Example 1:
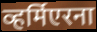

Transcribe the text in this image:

व्हर्मिएरना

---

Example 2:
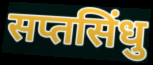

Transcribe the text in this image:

सप्तसिंधु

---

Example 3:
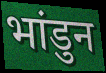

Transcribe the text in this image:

भांडुन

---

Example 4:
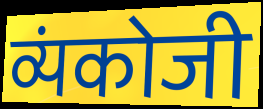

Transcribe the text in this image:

व्यंकोजी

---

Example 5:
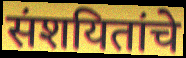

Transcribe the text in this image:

संशयितांचे